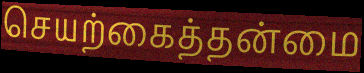
செயற்கைத்தன்மை